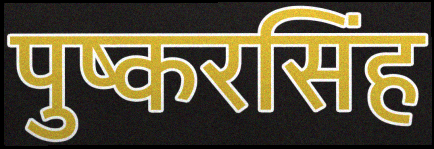
पुष्करसिंह